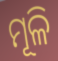
ମୂଳି